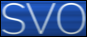
SVO